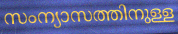
സംന്യാസത്തിനുള്ള